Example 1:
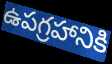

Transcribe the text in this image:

ఉపగ్రహానికి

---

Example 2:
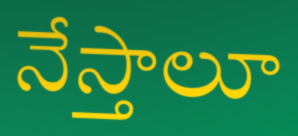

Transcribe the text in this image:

నేస్తాలూ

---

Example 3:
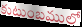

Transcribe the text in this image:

కుటుంబములో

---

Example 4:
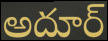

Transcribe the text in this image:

అదూర్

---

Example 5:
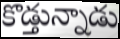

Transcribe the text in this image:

కొడ్తున్నాడు